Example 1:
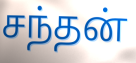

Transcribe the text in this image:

சந்தன்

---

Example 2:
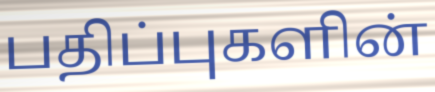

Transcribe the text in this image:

பதிப்புகளின்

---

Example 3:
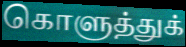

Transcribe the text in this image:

கொளுத்துக்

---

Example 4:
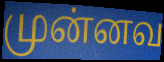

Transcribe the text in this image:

முன்னவ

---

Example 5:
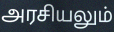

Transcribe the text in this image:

அரசியலும்